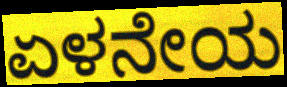
ಏಳನೇಯ